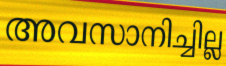
അവസാനിച്ചില്ല